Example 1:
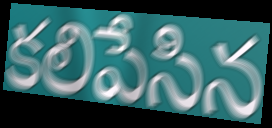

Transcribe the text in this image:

కలిపేసిన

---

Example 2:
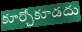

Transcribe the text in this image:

కూర్చోకూడదు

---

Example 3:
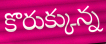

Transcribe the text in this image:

కొరుక్కున్న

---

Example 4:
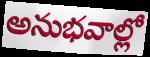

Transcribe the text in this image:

అనుభవాల్లో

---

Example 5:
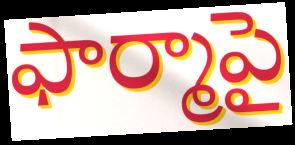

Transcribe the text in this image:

ఫార్మాపై